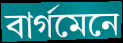
বাৰ্গমেনে